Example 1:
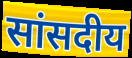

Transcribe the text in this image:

सांसदीय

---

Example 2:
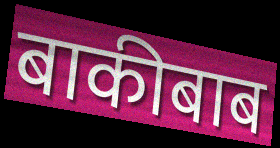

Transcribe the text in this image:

बाकीबाब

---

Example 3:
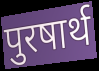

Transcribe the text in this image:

पुरषार्थ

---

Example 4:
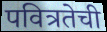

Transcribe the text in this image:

पवित्रतेची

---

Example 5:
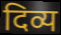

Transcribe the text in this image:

दिव्य